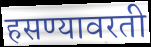
हसण्यावरती